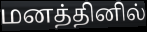
மனத்தினில்